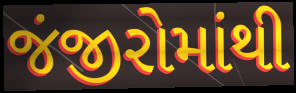
જંજીરોમાંથી